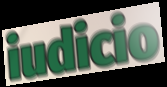
iudicio